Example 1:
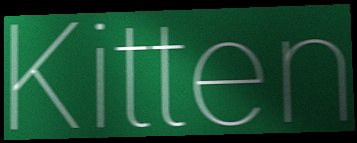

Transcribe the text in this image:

Kitten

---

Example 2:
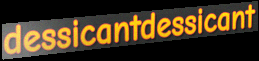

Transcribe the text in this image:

dessicantdessicant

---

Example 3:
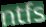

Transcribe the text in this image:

ntfs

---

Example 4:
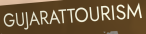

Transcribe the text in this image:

GUJARATTOURISM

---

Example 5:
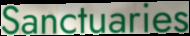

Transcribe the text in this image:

Sanctuaries